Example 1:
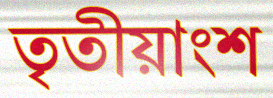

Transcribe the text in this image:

তৃতীয়াংশ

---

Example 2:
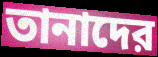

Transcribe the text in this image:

তানাদের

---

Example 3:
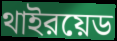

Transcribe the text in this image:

থাইরয়েড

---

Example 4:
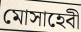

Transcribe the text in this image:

মোসাহেবী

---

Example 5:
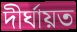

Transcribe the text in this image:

দীর্ঘায়ত